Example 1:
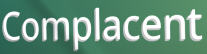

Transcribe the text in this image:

Complacent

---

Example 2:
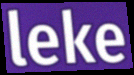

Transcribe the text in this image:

leke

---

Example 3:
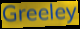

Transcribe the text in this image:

Greeley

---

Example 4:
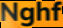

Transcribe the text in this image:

Nghf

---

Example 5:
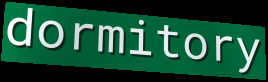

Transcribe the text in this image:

dormitory